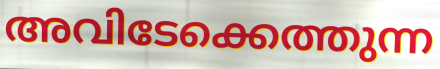
അവിടേക്കെത്തുന്ന